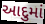
આદુમાં